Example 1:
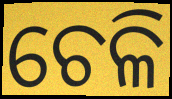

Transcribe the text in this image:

ଚେଳି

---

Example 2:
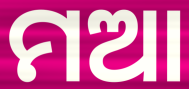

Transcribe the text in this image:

ମଆ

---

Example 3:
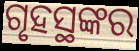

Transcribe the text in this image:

ଗୃହସ୍ଥଙ୍କର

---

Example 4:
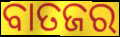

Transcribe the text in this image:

ବାତଜର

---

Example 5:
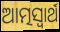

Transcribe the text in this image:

ଆତ୍ମସ୍ଵାର୍ଥ